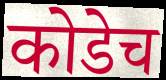
कोडेच